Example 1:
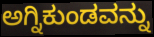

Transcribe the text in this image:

ಅಗ್ನಿಕುಂಡವನ್ನು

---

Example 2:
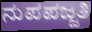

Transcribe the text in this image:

ನುಪಪಜ್ಜತಿ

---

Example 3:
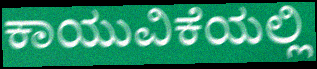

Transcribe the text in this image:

ಕಾಯುವಿಕೆಯಲ್ಲಿ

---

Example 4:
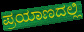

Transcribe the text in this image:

ಪ್ರಯಾಣದಲ್ಲಿ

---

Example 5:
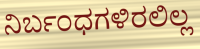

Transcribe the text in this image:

ನಿರ್ಬಂಧಗಳಿರಲಿಲ್ಲ